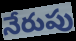
నేరుపు